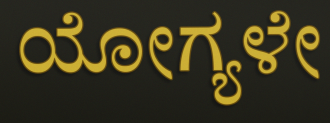
ಯೋಗ್ಯಳೇ